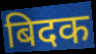
बिदक